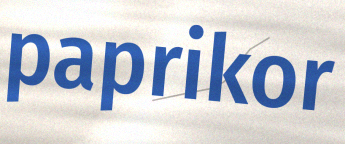
paprikor